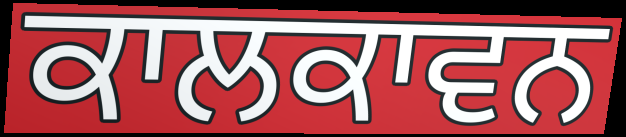
ਕਾਲਕਾਵਨ